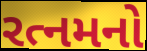
રત્નમનો